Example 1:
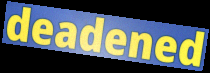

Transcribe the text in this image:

deadened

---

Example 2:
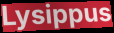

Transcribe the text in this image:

Lysippus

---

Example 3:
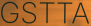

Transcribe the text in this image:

GSTTA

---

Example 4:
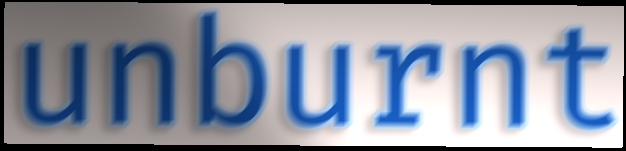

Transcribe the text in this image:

unburnt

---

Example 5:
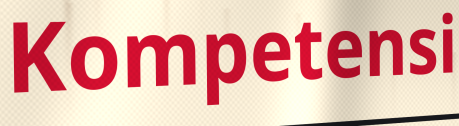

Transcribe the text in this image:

Kompetensi